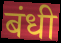
बंधी